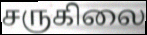
சருகிலை